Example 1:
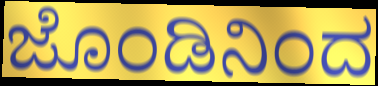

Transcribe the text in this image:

ಜೊಂಡಿನಿಂದ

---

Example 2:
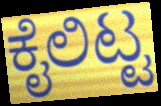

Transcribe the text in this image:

ಕೈಲಿಟ್ಟ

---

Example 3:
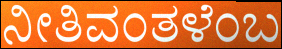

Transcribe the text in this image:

ನೀತಿವಂತಳೆಂಬ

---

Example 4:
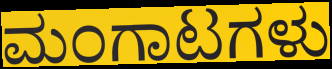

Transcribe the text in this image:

ಮಂಗಾಟಗಳು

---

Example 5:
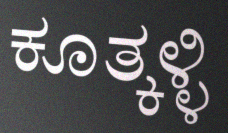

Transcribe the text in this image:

ಕೂತ್ಕಳ್ಳಿ